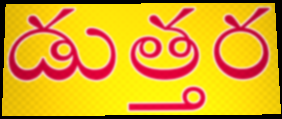
డుత్తర